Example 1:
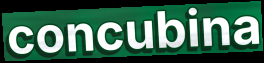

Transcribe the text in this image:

concubina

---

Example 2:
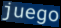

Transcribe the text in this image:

juego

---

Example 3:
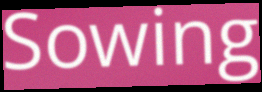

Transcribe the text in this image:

Sowing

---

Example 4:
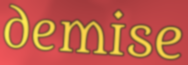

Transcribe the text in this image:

demise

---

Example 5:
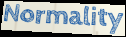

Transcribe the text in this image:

Normality